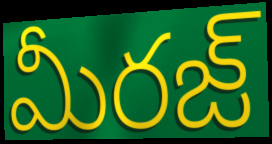
మీరజ్